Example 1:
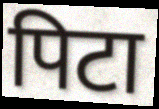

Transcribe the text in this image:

पिटा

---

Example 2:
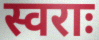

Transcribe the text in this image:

स्वराः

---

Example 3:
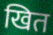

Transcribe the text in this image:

खित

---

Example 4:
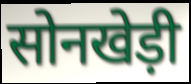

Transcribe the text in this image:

सोनखेड़ी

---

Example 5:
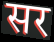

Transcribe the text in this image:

सर